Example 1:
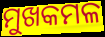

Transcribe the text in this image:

ମୁଖକମଳ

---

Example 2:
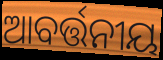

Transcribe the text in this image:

ଆବର୍ତ୍ତନୀୟ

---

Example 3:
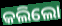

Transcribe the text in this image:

କଲିଲୋ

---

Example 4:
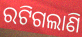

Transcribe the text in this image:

ରଟିଗଲାଣି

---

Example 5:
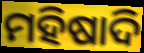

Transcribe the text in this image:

ମହିଷାଦି